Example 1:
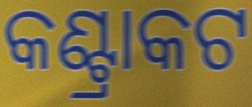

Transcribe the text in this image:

କଣ୍ଟ୍ରାକଟ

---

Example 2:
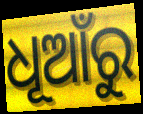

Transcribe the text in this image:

ଧୂଆଁରୁ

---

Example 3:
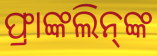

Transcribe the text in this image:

ଫ୍ରାଙ୍କଲିନ୍‌ଙ୍କ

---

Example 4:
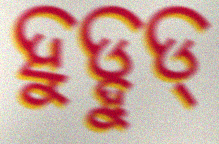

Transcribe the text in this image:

ହୁଡ୍ହୁଡ୍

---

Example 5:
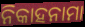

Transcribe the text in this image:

ନିକାହନାମା